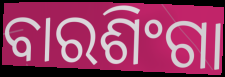
ବାରଶିଂଗା